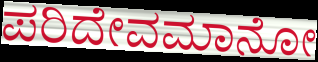
ಪರಿದೇವಮಾನೋ